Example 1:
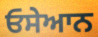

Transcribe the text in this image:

ਓਸੇਆਨ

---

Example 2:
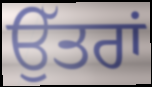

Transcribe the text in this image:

ਉੱਤਰਾਂ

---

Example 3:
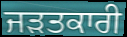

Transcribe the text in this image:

ਜੜਤਕਾਰੀ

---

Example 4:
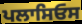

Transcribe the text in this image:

ਪਲਾਸਿਓਸ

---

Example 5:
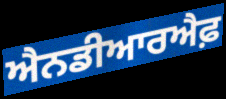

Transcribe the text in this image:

ਐਨਡੀਆਰਐਫ਼